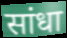
सांधा